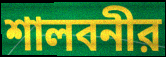
শালবনীর